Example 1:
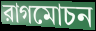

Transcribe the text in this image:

রাগমোচন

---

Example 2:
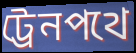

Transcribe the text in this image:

ট্রেনপথে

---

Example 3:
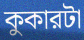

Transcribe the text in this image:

কুকারটা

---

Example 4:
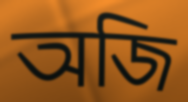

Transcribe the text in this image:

অজি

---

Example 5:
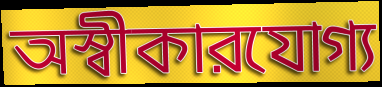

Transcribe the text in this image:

অস্বীকারযোগ্য